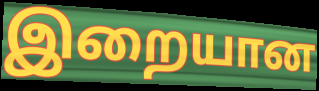
இறையான